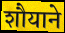
शौयाने